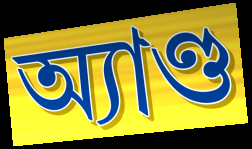
অ্যাণ্ড